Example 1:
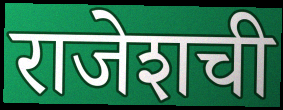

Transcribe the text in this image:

राजेशची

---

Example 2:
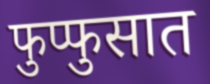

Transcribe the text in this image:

फुप्फुसात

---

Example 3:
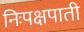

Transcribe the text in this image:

निःपक्षपाती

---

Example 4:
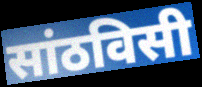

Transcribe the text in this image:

सांठविसी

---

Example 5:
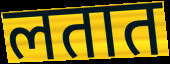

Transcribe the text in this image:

लतात